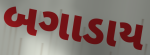
બગાડાય